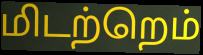
மிடற்றெம்